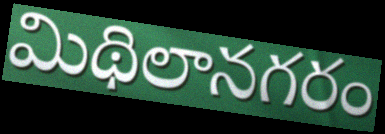
మిథిలానగరం